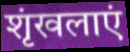
शृंखलाएं